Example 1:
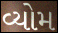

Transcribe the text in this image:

વ્યોમ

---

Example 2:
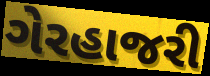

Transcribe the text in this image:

ગેરહાજરી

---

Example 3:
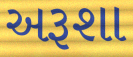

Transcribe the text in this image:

અરૂશા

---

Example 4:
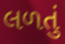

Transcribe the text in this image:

લળતું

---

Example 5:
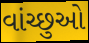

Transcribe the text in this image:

વાંચ્છુઓ